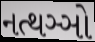
નત્થઞ્ઞો